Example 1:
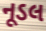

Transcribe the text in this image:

નૂડલ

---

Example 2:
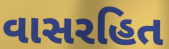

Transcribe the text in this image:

વાસરહિત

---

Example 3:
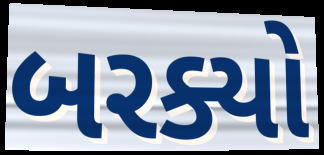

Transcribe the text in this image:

બરક્યો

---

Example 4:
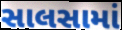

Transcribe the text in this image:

સાલસામાં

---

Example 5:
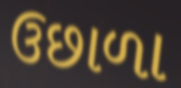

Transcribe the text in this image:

ઉછાળા